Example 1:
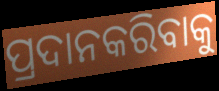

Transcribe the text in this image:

ପ୍ରଦାନକରିବାକୁ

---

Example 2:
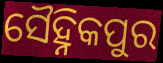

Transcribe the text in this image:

ସୈହ୍ନିକପୁର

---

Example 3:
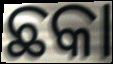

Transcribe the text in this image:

ଛକା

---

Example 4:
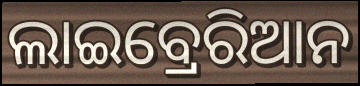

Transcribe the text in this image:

ଲାଇବ୍ରେରିଆନ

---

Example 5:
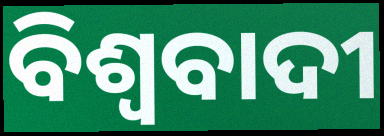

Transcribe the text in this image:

ବିଶ୍ବବାଦୀ